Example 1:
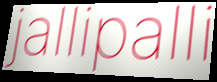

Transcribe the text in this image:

jallipalli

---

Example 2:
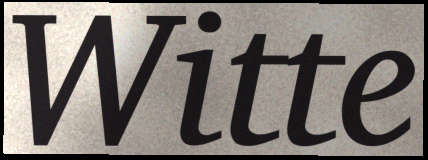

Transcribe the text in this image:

Witte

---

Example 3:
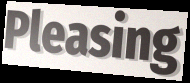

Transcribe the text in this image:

Pleasing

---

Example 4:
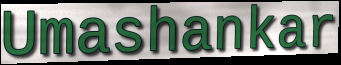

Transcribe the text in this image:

Umashankar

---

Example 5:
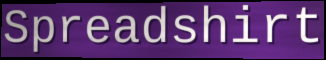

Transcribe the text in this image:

Spreadshirt